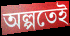
অল্পতেই